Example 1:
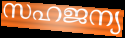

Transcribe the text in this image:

സഹജന്യ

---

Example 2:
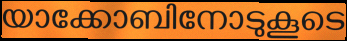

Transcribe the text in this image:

യാക്കോബിനോടുകൂടെ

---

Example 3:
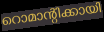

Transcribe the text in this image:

റൊമാന്റിക്കായി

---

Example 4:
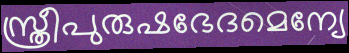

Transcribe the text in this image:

സ്ത്രീപുരുഷഭേദമെന്യേ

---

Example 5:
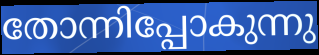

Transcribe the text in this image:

തോന്നിപ്പോകുന്നു